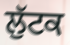
ਲੁੱਟਕ